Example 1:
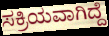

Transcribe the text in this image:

ಸಕ್ರಿಯವಾಗಿದ್ದೆ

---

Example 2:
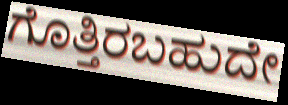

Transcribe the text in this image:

ಗೊತ್ತಿರಬಹುದೇ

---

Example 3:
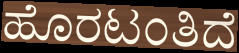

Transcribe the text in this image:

ಹೊರಟಂತಿದೆ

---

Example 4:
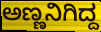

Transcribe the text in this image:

ಅಣ್ಣನಿಗಿದ್ದ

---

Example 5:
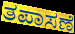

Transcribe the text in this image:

ತಪಾಸಣೆ